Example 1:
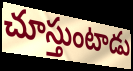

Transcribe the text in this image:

చూస్తుంటాడు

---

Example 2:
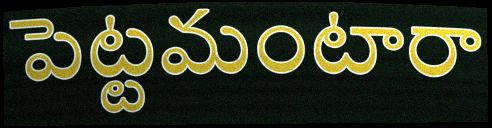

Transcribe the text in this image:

పెట్టమంటారా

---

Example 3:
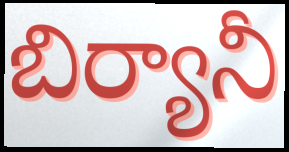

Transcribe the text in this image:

బిర్యానీ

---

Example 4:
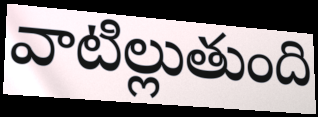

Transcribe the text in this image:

వాటిల్లుతుంది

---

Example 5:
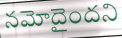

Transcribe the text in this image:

నమోదైందని